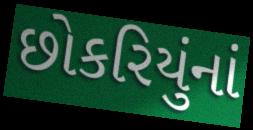
છોકરિયુંનાં